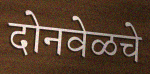
दोनवेळचे